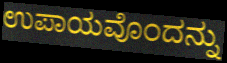
ಉಪಾಯವೊಂದನ್ನು